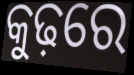
କୁଢ଼ରେ